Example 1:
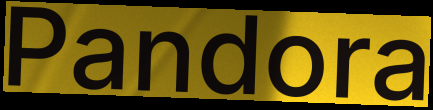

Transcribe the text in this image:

Pandora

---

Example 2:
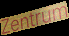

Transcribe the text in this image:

Zentrum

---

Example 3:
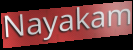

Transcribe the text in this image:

Nayakam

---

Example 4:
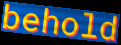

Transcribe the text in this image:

behold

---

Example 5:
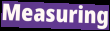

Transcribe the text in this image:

Measuring